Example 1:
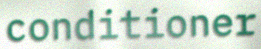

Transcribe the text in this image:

conditioner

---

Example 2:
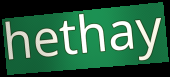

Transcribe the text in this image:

hethay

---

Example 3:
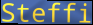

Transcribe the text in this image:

Steffi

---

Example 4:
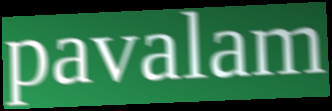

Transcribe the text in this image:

pavalam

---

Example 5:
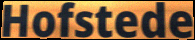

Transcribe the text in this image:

Hofstede